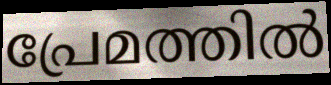
പ്രേമത്തിൽ